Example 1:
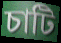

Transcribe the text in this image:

চাটি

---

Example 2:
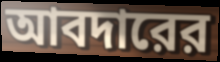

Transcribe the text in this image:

আবদারের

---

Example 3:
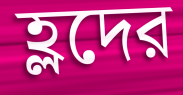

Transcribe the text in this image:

হ্লদের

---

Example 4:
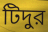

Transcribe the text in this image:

টিদুর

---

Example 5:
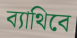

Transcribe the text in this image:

ব্যাথিবে